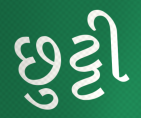
છુટ્ટી